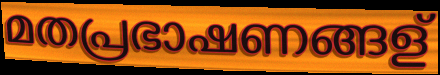
മതപ്രഭാഷണങ്ങള്